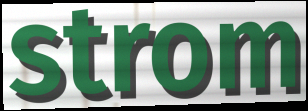
strom